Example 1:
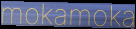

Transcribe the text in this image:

mokamoka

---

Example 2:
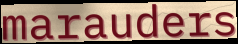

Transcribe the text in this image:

marauders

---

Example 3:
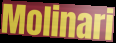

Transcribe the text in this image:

Molinari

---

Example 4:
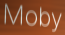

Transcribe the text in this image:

Moby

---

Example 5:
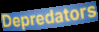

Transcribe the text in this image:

Depredators